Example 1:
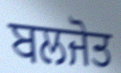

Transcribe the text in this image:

ਬਲਜੋਤ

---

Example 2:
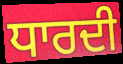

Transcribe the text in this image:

ਧਾਰਦੀ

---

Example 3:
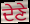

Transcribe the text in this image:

ਦੇਣੇ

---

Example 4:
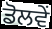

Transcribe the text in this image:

ਡੋਲਵੇਂ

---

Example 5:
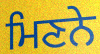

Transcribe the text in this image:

ਮਿਣਨੇ